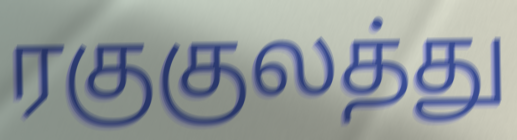
ரகுகுலத்து